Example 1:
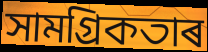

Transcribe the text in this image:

সামগ্ৰিকতাৰ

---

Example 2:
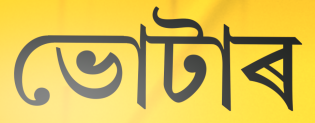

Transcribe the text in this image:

ভোটাৰ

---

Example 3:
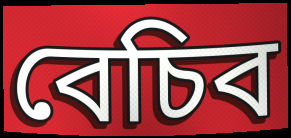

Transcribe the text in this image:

বেচিব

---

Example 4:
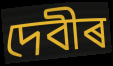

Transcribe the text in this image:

দেবীৰ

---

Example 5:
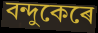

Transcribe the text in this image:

বন্দুকেৰে